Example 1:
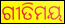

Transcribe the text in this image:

ଗୀତିମୟ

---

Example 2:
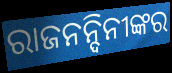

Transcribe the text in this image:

ରାଜନନ୍ଦିନୀଙ୍କର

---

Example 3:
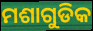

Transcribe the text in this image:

ମଶାଗୁଡିକ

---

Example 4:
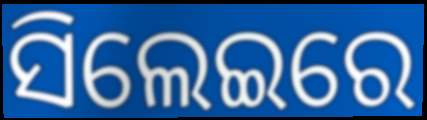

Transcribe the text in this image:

ସିଲେଇରେ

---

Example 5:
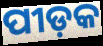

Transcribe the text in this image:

ପୀଡ଼କ